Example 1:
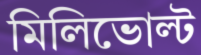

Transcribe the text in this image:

মিলিভোল্ট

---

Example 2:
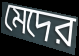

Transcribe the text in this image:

মেদের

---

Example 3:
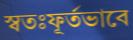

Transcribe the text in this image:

স্বতঃফূর্তভাবে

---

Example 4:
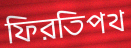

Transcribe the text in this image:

ফিরতিপথ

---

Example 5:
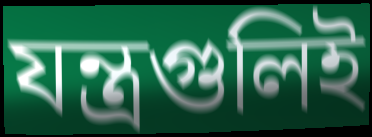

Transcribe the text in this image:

যন্ত্রগুলিই